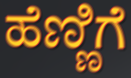
ಹೆಣ್ಣಿಗೆ